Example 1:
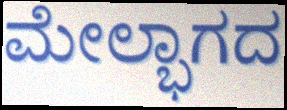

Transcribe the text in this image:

ಮೇಲ್ಭಾಗದ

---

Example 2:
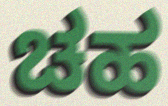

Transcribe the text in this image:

ಚಹ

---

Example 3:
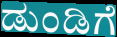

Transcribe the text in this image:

ಡುಂಡಿಗೆ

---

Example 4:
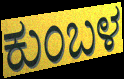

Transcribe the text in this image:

ಕುಂಬಳ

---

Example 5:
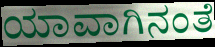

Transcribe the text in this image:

ಯಾವಾಗಿನಂತೆ